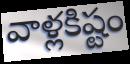
వాళ్లకిష్టం